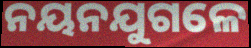
ନୟନଯୁଗଳେ